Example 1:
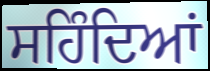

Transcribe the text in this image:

ਸਹਿੰਦਿਆਂ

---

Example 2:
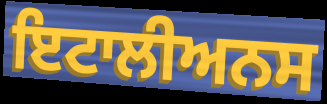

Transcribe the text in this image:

ਇਟਾਲੀਅਨਸ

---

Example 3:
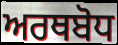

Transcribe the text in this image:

ਅਰਥਬੋਧ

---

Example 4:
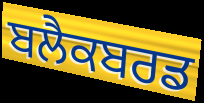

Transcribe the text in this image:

ਬਲੈਕਬਰਡ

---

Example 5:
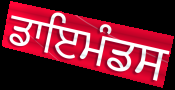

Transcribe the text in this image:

ਡਾਇਮੰਡਸ